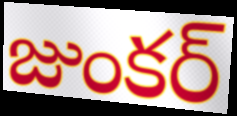
జుంకర్